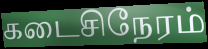
கடைசிநேரம்